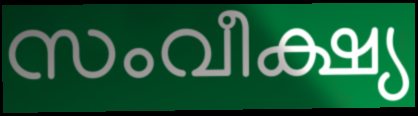
സംവീക്ഷ്യ